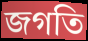
জগতি